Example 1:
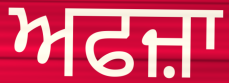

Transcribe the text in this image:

ਅਫਜ਼ਾ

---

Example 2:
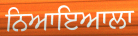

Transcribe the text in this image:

ਨਿਆਇਆਲਾ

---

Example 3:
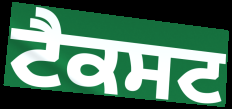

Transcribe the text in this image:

ਟੈਕਸਟ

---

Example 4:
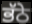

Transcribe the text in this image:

ਭੱਠੇ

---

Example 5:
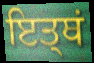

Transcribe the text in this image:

ਇਤ੍ਥਂ